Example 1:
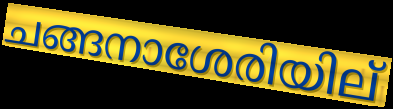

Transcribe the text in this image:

ചങ്ങനാശേരിയില്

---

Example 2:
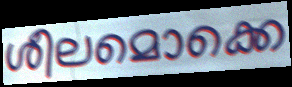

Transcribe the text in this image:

ശീലമൊക്കെ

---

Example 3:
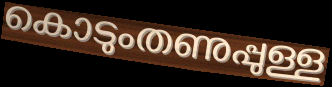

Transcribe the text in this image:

കൊടുംതണുപ്പുള്ള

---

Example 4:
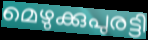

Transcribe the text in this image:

മെഴുക്കുപുരട്ടി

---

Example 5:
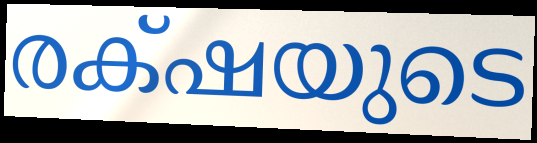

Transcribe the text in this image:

രക്‌ഷയുടെ